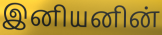
இனியனின்